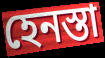
হেনস্তা